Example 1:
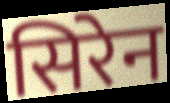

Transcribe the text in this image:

सिरेन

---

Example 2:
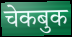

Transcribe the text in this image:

चेकबुक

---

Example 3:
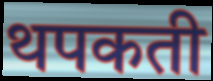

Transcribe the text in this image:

थपकती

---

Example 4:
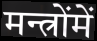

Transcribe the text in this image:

मन्त्रोंमें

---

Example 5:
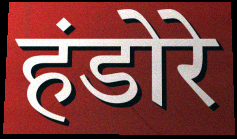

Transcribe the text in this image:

हंडोरे